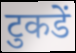
टुकडें